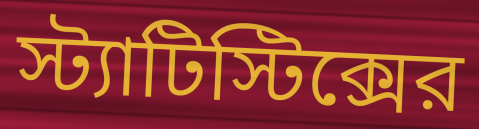
স্ট্যাটিস্টিক্সের